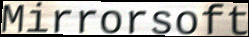
Mirrorsoft